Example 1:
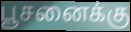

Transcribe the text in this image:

பூசனைக்கு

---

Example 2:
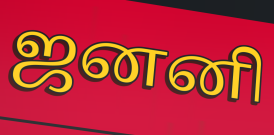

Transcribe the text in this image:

ஜனனி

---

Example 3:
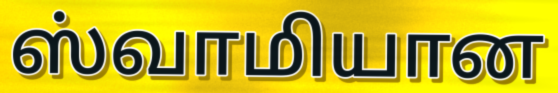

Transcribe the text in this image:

ஸ்வாமியான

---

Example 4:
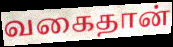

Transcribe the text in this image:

வகைதான்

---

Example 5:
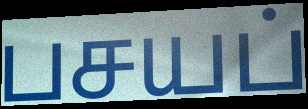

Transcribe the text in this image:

பசயப்